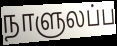
நாளுலப்ப